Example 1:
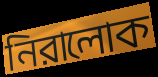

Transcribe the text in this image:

নিরালোক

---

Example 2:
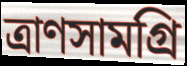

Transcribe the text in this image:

ত্রাণসামগ্রি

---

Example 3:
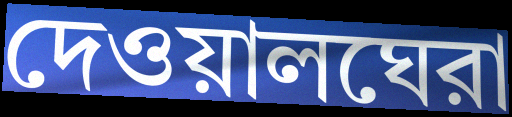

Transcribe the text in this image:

দেওয়ালঘেরা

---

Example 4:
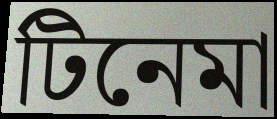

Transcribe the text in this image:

টিনেমা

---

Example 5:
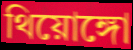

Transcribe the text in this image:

থিয়োঙ্গো